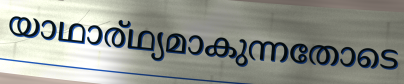
യാഥാര്ഥ്യമാകുന്നതോടെ